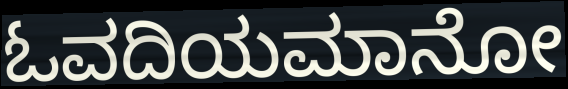
ಓವದಿಯಮಾನೋ